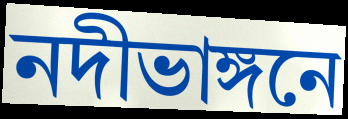
নদীভাঙ্গনে